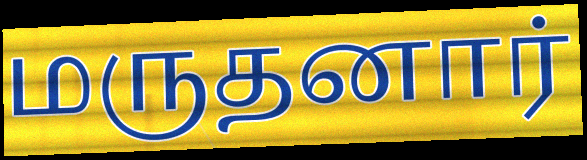
மருதனார்